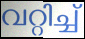
വറ്റിച്ച്